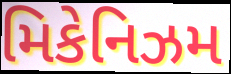
મિકેનિઝમ